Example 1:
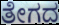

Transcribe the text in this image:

ತೇಗದ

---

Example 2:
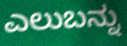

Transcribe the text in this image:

ಎಲುಬನ್ನು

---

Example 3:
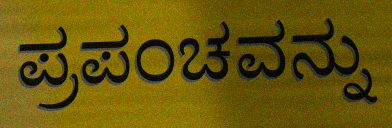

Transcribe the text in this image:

ಪ್ರಪಂಚವನ್ನು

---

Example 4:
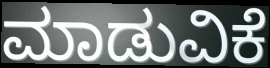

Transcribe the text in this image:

ಮಾಡುವಿಕೆ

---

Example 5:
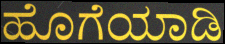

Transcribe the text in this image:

ಹೊಗೆಯಾಡಿ